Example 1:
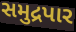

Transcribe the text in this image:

સમુદ્રપાર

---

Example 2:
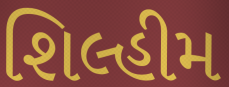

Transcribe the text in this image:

શિલ્હીમ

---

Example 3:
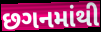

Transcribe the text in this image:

છગનમાંથી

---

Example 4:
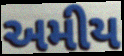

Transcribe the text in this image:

અમીય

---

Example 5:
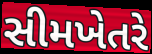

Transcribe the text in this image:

સીમખેતરે